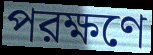
পরক্ষণে